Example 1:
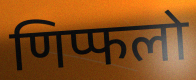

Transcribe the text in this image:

णिप्फलो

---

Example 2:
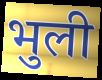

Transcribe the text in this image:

भुली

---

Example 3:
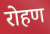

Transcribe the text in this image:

रोहण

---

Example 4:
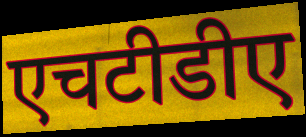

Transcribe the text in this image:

एचटीडीए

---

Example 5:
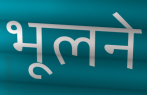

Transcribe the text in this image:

भूलने